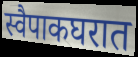
स्वैपाकघरात